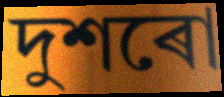
দুশৰো